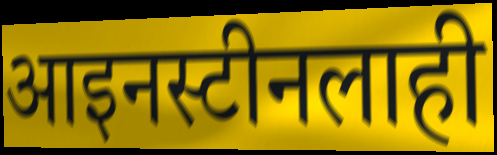
आइनस्टीनलाही